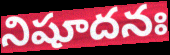
నిషూదనః